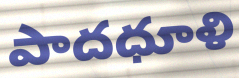
పాదధూళి